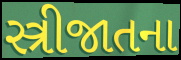
સ્ત્રીજાતના